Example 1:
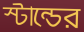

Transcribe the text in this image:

স্টান্ডের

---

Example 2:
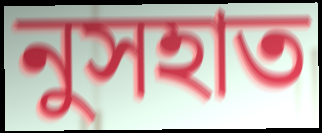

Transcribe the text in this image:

নুসহাত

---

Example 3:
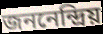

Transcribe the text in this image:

জননেন্দ্রিয়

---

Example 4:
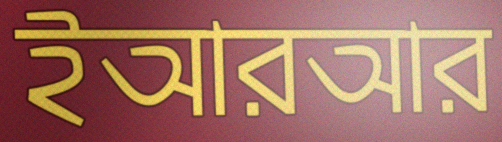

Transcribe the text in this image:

ইআরআর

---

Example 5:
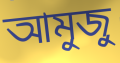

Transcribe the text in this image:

আমুজু